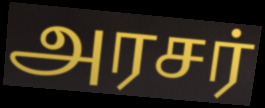
அரசர்